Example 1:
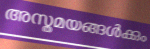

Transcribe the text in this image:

അസ്തമയങ്ങൾക്കും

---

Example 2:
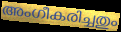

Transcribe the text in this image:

അംഗീകരിച്ചതും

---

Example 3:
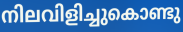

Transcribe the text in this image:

നിലവിളിച്ചുകൊണ്ടു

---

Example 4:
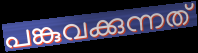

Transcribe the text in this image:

പങ്കുവക്കുന്നത്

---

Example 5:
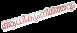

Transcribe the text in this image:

ആധിക്യംനിമിത്തവും